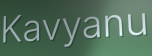
Kavyanu